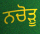
ਨਚੋੜੂ